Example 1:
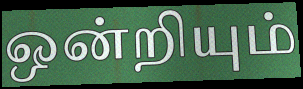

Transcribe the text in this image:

ஒன்றியும்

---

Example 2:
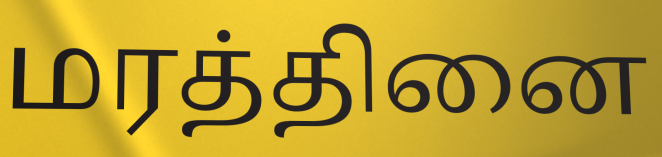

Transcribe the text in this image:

மரத்தினை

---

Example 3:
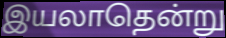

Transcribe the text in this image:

இயலாதென்று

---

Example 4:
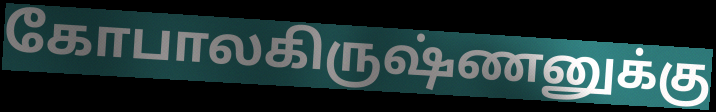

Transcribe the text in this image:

கோபாலகிருஷ்ணனுக்கு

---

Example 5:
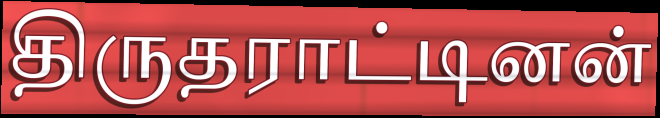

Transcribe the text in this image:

திருதராட்டினன்